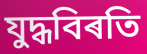
যুদ্ধবিৰতি